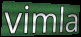
vimla